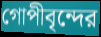
গোপীবৃন্দের